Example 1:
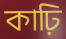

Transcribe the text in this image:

কাঢ়ি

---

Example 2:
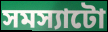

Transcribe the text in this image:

সমস্যাটো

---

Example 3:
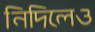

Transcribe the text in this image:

নিদিলেও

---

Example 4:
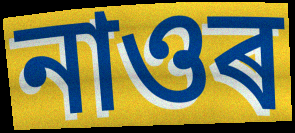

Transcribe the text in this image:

নাওৰ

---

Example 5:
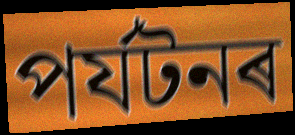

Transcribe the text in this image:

পৰ্যটনৰ